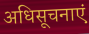
अधिसूचनाएं